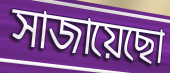
সাজায়েছো